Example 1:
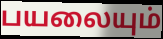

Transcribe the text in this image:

பயலையும்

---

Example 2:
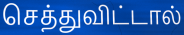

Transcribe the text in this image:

செத்துவிட்டால்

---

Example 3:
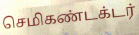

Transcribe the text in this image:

செமிகண்டக்டர்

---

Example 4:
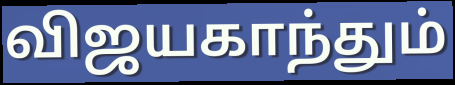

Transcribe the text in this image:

விஜயகாந்தும்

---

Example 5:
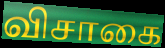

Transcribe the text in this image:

விசாகை